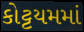
કોટ્ટયમમાં